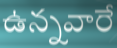
ఉన్నవారే